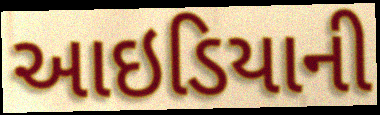
આઇડિયાની